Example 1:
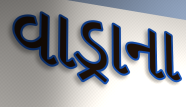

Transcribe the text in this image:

વાડ્રાના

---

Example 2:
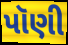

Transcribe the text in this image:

પૉણી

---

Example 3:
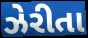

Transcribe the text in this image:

ઝેરીતા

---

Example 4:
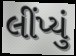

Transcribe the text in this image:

લીંપ્યું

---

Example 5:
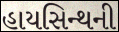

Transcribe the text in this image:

હાયસિન્થની